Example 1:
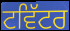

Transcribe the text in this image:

ਟਵਿੱਟਰ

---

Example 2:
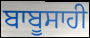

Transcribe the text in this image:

ਬਾਬੂਸਾਹੀ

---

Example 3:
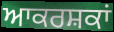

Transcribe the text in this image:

ਆਕਰਸ਼ਕਾਂ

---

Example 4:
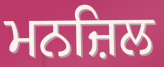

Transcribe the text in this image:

ਮਨਜ਼ਿਲ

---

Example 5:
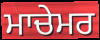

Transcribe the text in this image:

ਮਾਚੇਮਰ